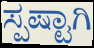
ಸ್ಪಷ್ಟಾಗಿ